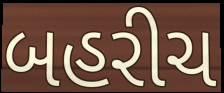
બહરીચ